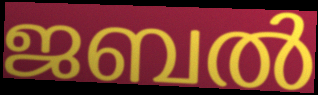
ജബൽ